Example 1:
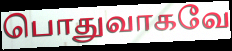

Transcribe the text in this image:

பொதுவாகவே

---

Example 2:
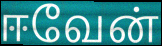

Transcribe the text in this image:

ஈவேன்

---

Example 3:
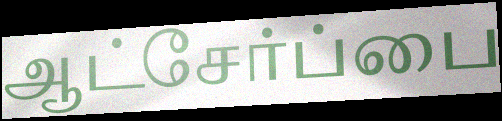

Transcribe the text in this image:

ஆட்சேர்ப்பை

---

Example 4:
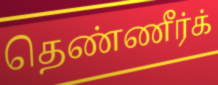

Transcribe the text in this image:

தெண்ணீர்க்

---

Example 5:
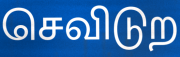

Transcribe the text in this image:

செவிடுற